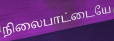
நிலைபாட்டையே